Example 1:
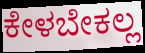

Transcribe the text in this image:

ಕೇಳಬೇಕಲ್ಲ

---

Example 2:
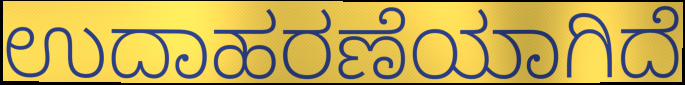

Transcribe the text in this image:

ಉದಾಹರಣೆಯಾಗಿದೆ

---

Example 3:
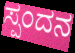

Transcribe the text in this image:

ಸ್ಪಂದನ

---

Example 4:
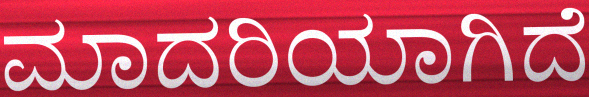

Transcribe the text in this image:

ಮಾದರಿಯಾಗಿದೆ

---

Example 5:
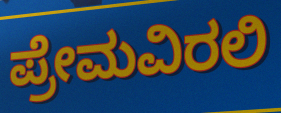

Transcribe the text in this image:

ಪ್ರೇಮವಿರಲಿ